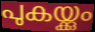
പുകയ്ക്കും